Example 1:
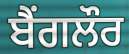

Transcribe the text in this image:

ਬੈੰਗਲੌਰ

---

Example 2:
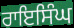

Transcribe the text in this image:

ਰਾਇਸਿੰਘ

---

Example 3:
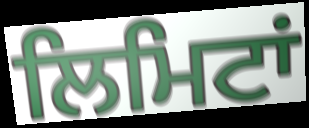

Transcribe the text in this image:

ਲਿਮਿਟਾਂ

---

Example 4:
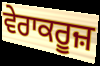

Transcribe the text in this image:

ਵੇਰਾਕਰੂਜ਼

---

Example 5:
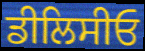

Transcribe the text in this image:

ਡੀਲਿਸੀਓ